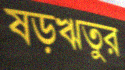
ষড়ঋতুর